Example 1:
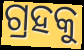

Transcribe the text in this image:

ଗ୍ରହକୁ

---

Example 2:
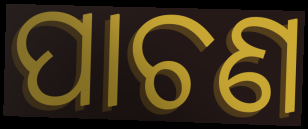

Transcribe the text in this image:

ପାଚଣ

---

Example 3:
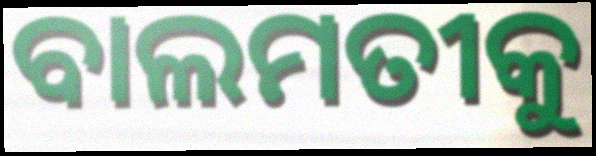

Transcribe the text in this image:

ବାଲମତୀକୁ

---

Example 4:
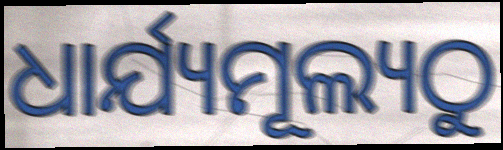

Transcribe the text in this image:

ଧାର୍ଯ୍ୟମୂଲ୍ୟଠୁ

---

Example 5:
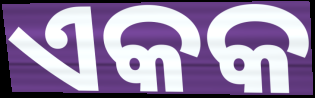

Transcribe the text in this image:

ଏକକ